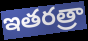
ఇతరత్రా